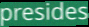
presides